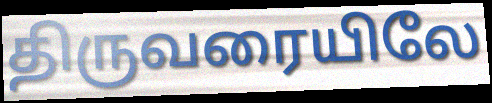
திருவரையிலே